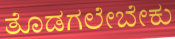
ತೊಡಗಲೇಬೇಕು